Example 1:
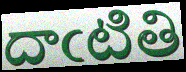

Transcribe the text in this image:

దాఁటితి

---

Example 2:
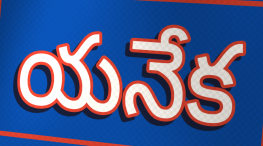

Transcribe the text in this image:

యనేక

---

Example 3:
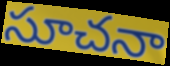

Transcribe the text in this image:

సూచనా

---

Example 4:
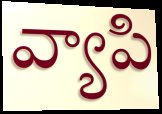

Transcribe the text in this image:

వ్యాపి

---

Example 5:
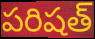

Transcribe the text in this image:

పరిషత్